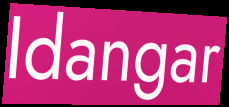
Idangar